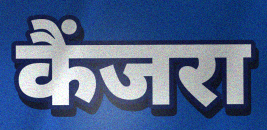
कैंजरा